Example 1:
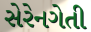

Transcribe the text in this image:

સેરેનગેતી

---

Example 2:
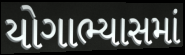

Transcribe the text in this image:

યોગાભ્યાસમાં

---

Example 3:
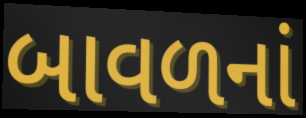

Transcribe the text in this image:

બાવળનાં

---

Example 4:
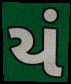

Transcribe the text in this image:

યં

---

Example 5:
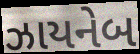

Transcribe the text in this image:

ઝાયનેબ